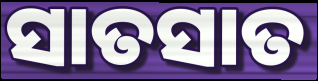
ସାତସାତ